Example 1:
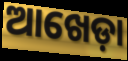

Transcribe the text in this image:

ଆଖେଡ଼ା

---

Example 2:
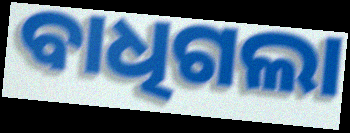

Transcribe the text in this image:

ବାଧିଗଲା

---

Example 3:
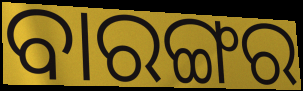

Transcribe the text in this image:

ବାରଙ୍ଗର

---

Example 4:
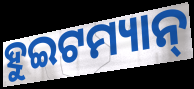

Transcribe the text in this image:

ହୁଇଟମ୍ୟାନ୍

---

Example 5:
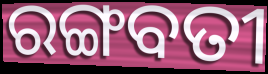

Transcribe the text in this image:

ରଙ୍ଗବତୀ